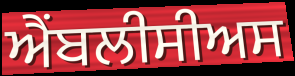
ਐਂਬਲੀਸੀਅਸ